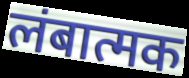
लंबात्मक